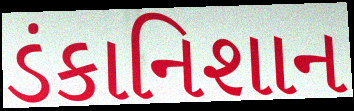
ડંકાનિશાન